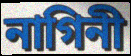
নাগিনী